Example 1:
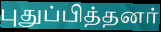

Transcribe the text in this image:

புதுப்பித்தனர்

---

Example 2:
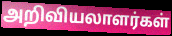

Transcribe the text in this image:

அறிவியலாளர்கள்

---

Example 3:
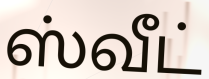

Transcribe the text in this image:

ஸ்வீட்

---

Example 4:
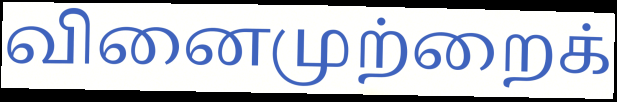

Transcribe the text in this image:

வினைமுற்றைக்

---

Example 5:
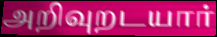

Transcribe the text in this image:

அறிவுறடயார்